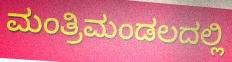
ಮಂತ್ರಿಮಂಡಲದಲ್ಲಿ